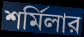
শর্মিলার